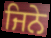
ਜਿਨੇ